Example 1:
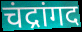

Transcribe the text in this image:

चंद्रांगद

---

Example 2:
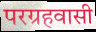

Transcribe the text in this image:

परग्रहवासी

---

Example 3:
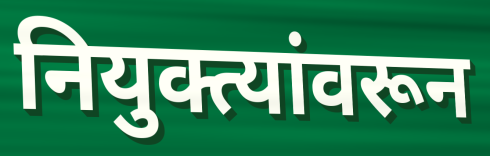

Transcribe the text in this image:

नियुक्त्यांवरून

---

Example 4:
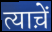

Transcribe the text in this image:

त्याच़ें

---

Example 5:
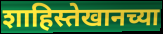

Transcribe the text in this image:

शाहिस्तेखानच्या